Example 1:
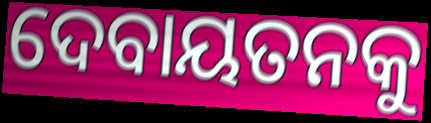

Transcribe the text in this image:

ଦେବାୟତନକୁ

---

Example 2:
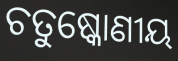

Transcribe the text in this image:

ଚତୁଷ୍କୋଣୀୟ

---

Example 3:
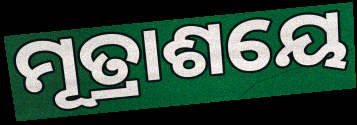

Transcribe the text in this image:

ମୂତ୍ରାଶୟେ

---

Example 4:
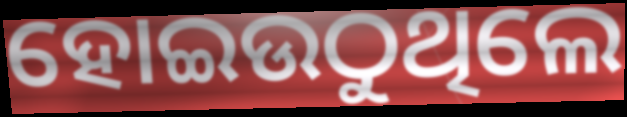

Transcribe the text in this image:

ହୋଇଉଠୁଥିଲେ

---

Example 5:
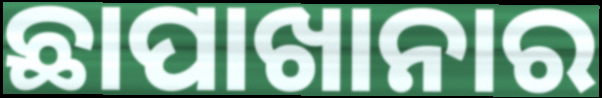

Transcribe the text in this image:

ଛାପାଖାନାର